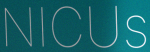
NICUs